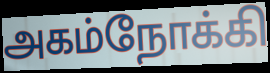
அகம்நோக்கி